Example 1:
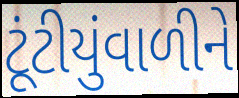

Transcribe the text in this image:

ટૂંટીયુંવાળીને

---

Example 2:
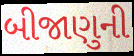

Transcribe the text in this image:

બીજાણુની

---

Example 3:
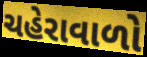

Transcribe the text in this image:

ચહેરાવાળો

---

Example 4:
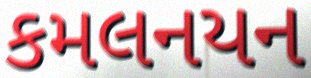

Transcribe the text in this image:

કમલનયન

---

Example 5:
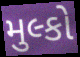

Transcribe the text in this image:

મુલ્કો